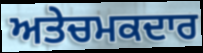
ਅਤੇਚਮਕਦਾਰ